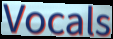
Vocals